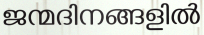
ജന്മദിനങ്ങളിൽ